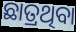
ଛାତ୍ରଥିବା